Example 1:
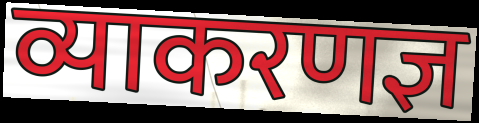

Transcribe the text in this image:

व्याकरणज्ञ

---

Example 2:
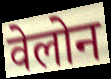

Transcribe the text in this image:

वेलोन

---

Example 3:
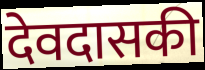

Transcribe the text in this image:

देवदासकी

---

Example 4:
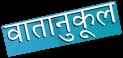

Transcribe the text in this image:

वातानुकूल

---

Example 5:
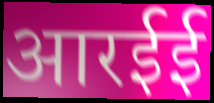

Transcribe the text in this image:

आरईई